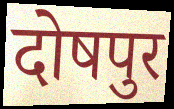
दोषपुर